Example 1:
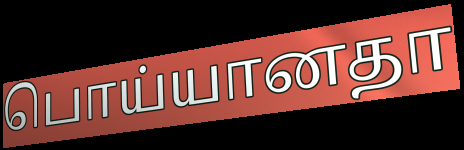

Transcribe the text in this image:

பொய்யானதா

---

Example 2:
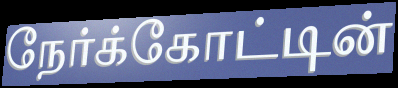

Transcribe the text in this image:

நேர்க்கோட்டின்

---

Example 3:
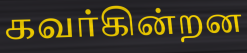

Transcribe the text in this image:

கவர்கின்றன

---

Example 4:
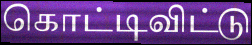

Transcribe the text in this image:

கொட்டிவிட்டு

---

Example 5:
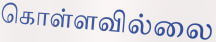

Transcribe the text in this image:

கொள்ளவில்லை